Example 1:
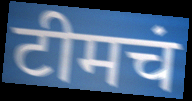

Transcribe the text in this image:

टीमचं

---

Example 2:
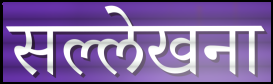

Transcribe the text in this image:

सल्लेखना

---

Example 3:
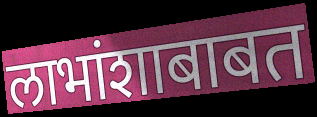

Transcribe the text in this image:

लाभांशाबाबत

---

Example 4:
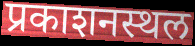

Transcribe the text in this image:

प्रकाशनस्थल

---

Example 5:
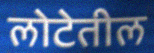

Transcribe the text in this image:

लोटेतील